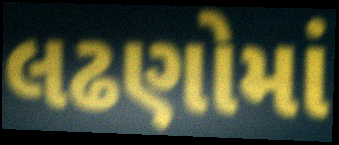
લઢણોમાં